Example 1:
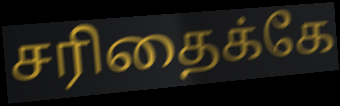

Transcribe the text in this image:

சரிதைக்கே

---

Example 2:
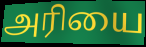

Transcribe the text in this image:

அரியை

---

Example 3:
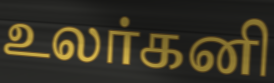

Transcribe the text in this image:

உலர்கனி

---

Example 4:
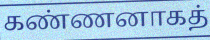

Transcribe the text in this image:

கண்ணனாகத்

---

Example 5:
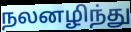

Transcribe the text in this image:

நலனழிந்து